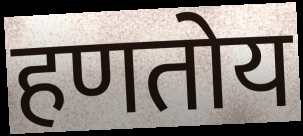
हणतोय